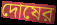
দোষের